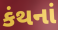
કંથનાં